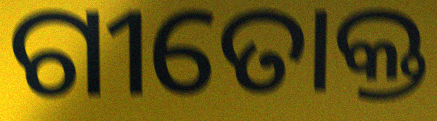
ଗୀତୋକ୍ତ